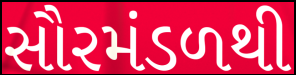
સૌરમંડળથી